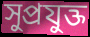
সুপ্রযুক্ত